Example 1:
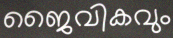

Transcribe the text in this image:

ജൈവികവും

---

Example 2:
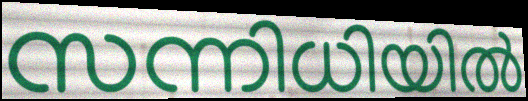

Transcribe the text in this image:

സന്നിധിയിൽ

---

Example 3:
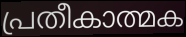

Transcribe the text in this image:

പ്രതീകാത്മക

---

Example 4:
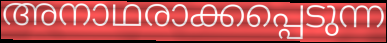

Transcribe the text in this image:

അനാഥരാക്കപ്പെടുന്ന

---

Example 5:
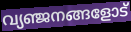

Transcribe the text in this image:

വ്യഞ്ജനങ്ങളോട്